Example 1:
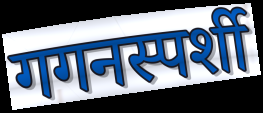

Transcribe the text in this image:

गगनस्पर्शी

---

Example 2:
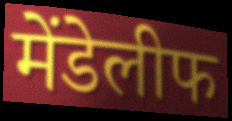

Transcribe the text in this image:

मेंडेलीफ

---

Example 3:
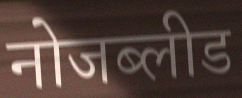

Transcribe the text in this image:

नोजब्लीड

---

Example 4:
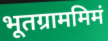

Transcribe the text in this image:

भूतग्राममिमं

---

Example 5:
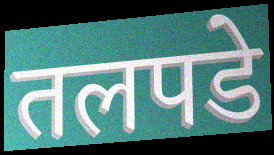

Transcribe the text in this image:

तलपडे